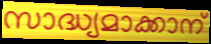
സാദ്ധ്യമാക്കാന്